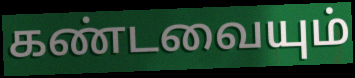
கண்டவையும்